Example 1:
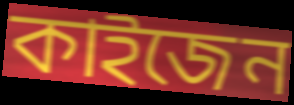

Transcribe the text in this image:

কাইজেন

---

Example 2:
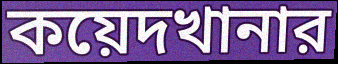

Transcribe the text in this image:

কয়েদখানার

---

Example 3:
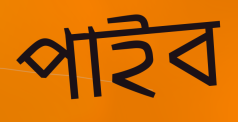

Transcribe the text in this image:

পাইব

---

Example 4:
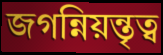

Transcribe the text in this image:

জগন্নিয়ন্তৃত্ব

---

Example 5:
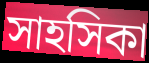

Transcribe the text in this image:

সাহসিকা